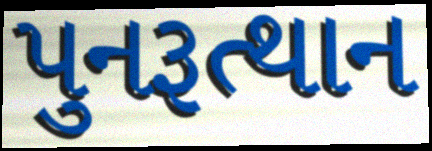
પુનરૂત્થાન